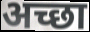
अच्छा